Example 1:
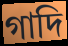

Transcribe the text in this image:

গাদি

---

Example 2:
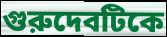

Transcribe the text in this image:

গুরুদেবটিকে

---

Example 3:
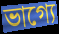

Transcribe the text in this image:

ভাগ্যে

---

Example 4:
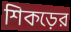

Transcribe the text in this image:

শিকড়ের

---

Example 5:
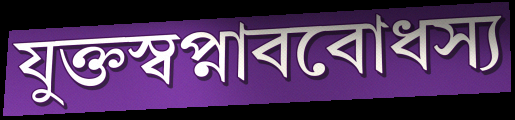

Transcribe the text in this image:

যুক্তস্বপ্নাববোধস্য